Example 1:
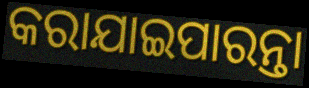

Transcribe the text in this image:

କରାଯାଇପାରନ୍ତା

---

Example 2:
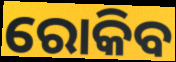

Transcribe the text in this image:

ରୋକିବ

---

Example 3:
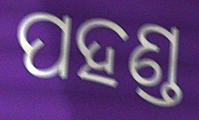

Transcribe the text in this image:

ପହଣ୍ଡ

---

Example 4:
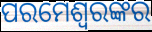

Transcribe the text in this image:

ପରମେଶ୍ୱରଙ୍କର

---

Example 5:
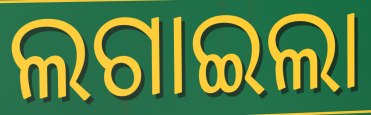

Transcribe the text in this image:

ଲଗାଇଲା